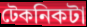
টেকনিকটা